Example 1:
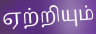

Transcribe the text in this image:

ஏற்றியும்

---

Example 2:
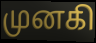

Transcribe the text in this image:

முனகி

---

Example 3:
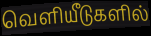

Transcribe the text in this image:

வெளியீடுகளில்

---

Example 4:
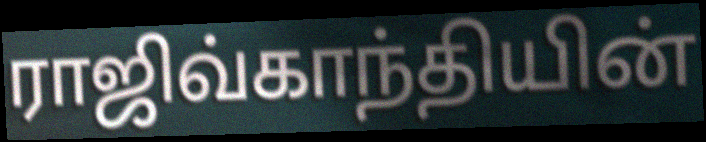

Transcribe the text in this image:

ராஜிவ்காந்தியின்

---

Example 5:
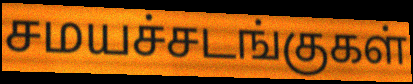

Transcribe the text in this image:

சமயச்சடங்குகள்